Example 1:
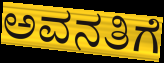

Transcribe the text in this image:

ಅವನತಿಗೆ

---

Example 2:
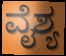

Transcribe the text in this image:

ವೈಶ್ಯ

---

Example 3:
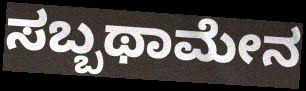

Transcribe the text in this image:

ಸಬ್ಬಥಾಮೇನ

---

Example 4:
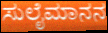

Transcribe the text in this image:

ಸುಲೈಮಾನನ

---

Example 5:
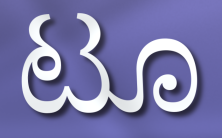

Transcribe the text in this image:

ಟೂ